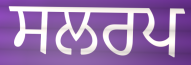
ਸਲਰਪ